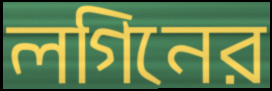
লগিনের